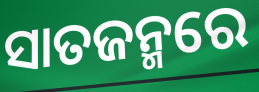
ସାତଜନ୍ମରେ